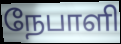
நேபாளி